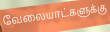
வேலையாட்களுக்கு